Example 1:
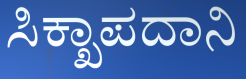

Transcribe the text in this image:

ಸಿಕ್ಖಾಪದಾನಿ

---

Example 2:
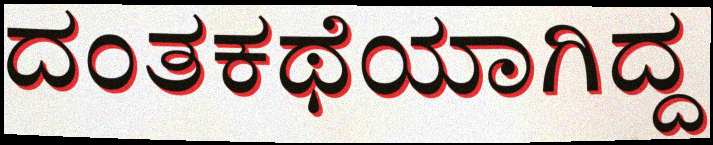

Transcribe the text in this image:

ದಂತಕಥೆಯಾಗಿದ್ದ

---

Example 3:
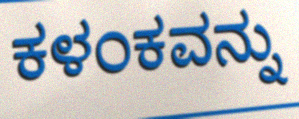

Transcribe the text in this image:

ಕಳಂಕವನ್ನು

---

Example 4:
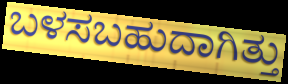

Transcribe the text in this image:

ಬಳಸಬಹುದಾಗಿತ್ತು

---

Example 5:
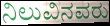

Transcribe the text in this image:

ನಿಲುವಿನವರು